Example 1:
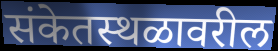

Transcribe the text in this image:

संकेतस्थळावरील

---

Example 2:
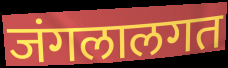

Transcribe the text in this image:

जंगलालगत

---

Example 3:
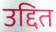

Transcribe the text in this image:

उद्दित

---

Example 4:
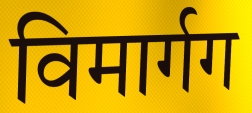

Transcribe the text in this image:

विमार्गग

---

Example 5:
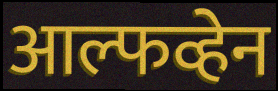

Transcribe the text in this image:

आल्फव्हेन